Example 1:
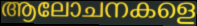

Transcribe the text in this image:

ആലോചനകളെ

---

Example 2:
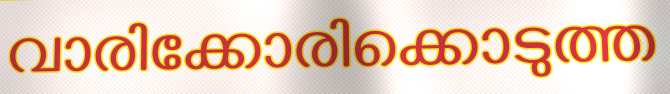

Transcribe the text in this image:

വാരിക്കോരിക്കൊടുത്ത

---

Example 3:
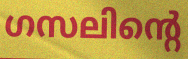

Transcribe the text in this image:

ഗസലിന്റെ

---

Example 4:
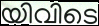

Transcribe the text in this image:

യിവിടെ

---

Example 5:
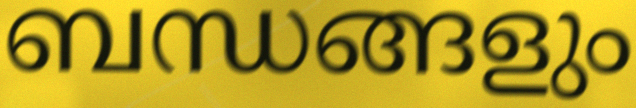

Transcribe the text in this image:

ബന്ധങ്ങളും